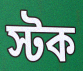
স্টক